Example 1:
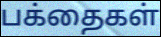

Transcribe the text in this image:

பக்தைகள்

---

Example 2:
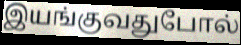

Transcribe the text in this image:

இயங்குவதுபோல்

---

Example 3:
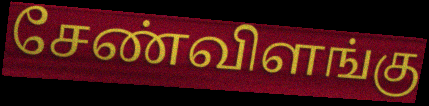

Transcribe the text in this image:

சேண்விளங்கு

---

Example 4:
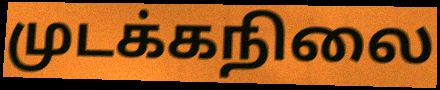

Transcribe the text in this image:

முடக்கநிலை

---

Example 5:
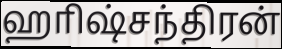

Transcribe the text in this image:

ஹரிஷ்சந்திரன்